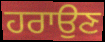
ਹਰਾਉਣ